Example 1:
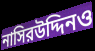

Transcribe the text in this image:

নাসিরউদ্দিনও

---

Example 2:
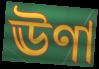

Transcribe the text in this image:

ঊণা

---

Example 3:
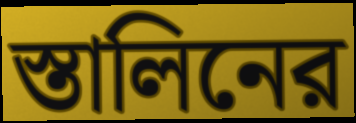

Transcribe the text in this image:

স্তালিনের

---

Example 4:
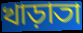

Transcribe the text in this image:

খাড়াতা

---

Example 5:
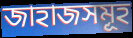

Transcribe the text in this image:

জাহাজসমূহ